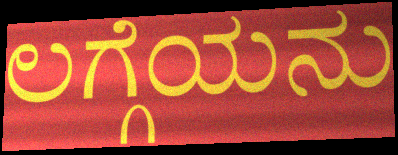
ಲಗ್ಗೆಯನು